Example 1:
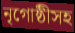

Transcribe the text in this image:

নৃগোষ্ঠীসহ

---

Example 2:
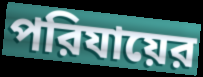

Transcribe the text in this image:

পরিযায়ের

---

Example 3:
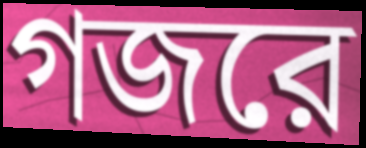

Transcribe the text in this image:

গজরে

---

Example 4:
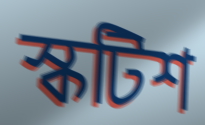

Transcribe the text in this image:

স্কটিশ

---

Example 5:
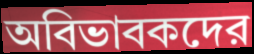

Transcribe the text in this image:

অবিভাবকদের